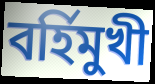
বর্হিমুখী